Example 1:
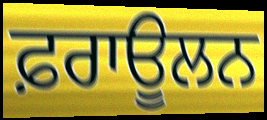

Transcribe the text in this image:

ਫ਼ਰਾਊਲਨ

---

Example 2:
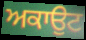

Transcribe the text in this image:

ਅਕਾਉਟ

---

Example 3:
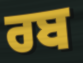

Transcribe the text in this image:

ਰਬ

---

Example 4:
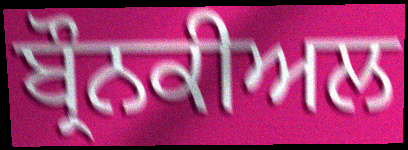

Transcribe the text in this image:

ਬ੍ਰੌਨਕੀਅਲ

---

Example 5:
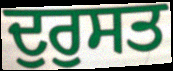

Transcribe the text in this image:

ਦੁਰੁਸਤ